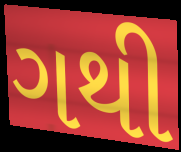
ગથી